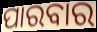
ପାରବାର